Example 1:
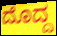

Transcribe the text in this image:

ದೊದ್ದ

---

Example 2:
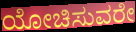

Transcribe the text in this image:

ಯೋಚಿಸುವರೇ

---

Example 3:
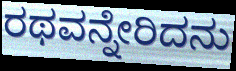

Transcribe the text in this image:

ರಥವನ್ನೇರಿದನು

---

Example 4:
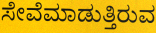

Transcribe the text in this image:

ಸೇವೆಮಾಡುತ್ತಿರುವ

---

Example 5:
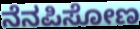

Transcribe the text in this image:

ನೆನಪಿಸೋಣ